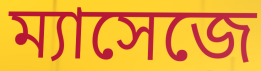
ম্যাসেজে